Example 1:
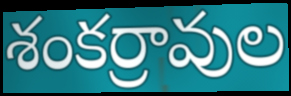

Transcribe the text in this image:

శంకర్రావుల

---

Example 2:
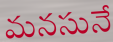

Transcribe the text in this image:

మనసునే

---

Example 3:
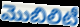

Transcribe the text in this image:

మొబిలిటీ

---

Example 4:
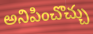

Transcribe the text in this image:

అనిపించొచ్చు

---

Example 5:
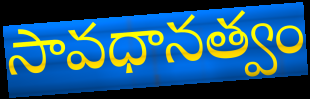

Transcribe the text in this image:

సావధానత్వం